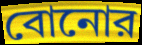
বোনোর